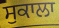
ਸੁਕਾਲਾ